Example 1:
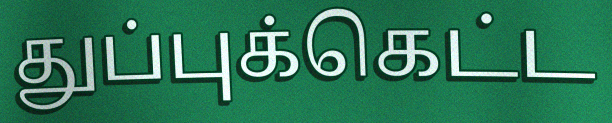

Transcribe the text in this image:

துப்புக்கெட்ட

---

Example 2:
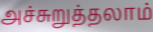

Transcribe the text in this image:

அச்சுறுத்தலாம்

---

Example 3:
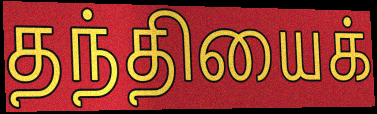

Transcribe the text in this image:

தந்தியைக்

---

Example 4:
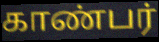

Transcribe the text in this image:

காண்பர்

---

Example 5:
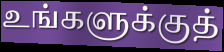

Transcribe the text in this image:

உங்களுக்குத்